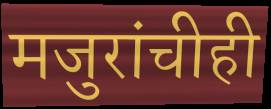
मजुरांचीही